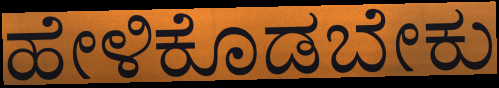
ಹೇಳಿಕೊಡಬೇಕು